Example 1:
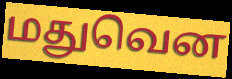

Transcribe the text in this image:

மதுவென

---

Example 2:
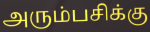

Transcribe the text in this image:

அரும்பசிக்கு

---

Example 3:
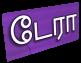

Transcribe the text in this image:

டேரா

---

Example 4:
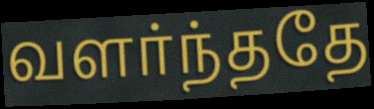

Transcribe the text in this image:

வளர்ந்ததே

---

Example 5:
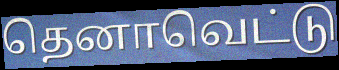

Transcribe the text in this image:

தெனாவெட்டு